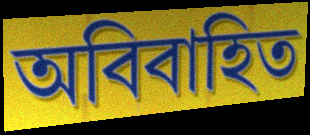
অবিবাহিত